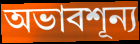
অভাবশূন্য